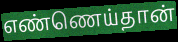
எண்ணெய்தான்